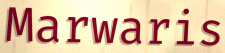
Marwaris